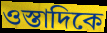
ওস্তাদিকে